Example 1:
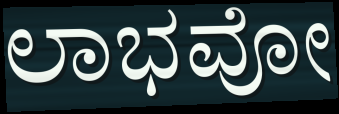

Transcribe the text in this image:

ಲಾಭವೋ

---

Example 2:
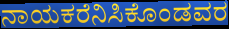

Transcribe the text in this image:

ನಾಯಕರೆನಿಸಿಕೊಂಡವರ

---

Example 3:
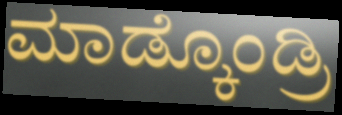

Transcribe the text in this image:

ಮಾಡ್ಕೊಂಡ್ರಿ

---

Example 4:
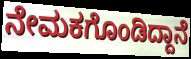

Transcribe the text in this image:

ನೇಮಕಗೊಂಡಿದ್ದಾನೆ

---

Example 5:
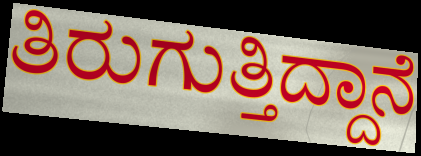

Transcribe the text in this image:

ತಿರುಗುತ್ತಿದ್ದಾನೆ